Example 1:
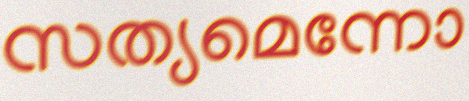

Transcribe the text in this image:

സത്യമെന്നോ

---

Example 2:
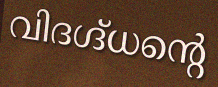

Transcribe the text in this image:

വിദഗ്ദ്ധന്റെ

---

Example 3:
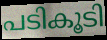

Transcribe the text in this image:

പടികൂടി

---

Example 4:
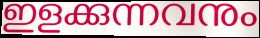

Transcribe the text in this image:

ഇളക്കുന്നവനും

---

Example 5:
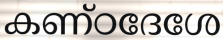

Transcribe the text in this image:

കണ്ഠദേശേ